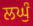
ਲਘੁੰ